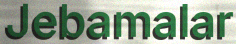
Jebamalar